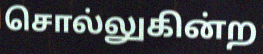
சொல்லுகின்ற